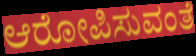
ಆರೋಪಿಸುವಂತೆ